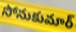
సోనుకుమార్